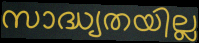
സാദ്ധ്യതയില്ല